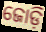
ଜୋଡ଼ି